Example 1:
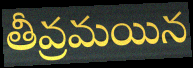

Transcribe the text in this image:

తీవ్రమయిన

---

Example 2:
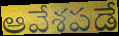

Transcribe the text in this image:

ఆవేశపడే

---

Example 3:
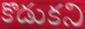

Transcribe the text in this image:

కొడుకని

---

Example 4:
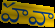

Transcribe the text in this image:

హవా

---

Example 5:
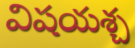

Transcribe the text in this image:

విషయశ్చ